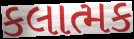
કલાત્મક